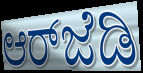
ಆರ್‌ಜೆಡಿ